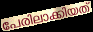
പേരിലാക്കിയത്